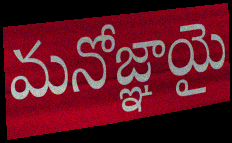
మనోజ్ఞాయై